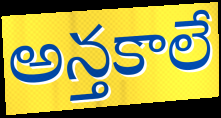
అన్తకాలే